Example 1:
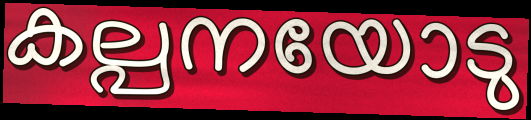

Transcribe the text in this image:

കല്പനയോടു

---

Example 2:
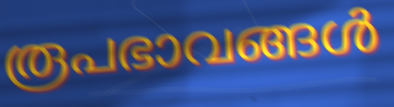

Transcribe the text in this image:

രൂപഭാവങ്ങൾ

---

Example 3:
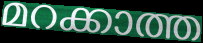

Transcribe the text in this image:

മറക്കാത്ത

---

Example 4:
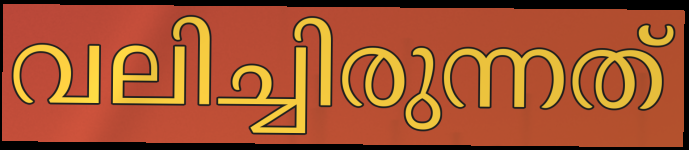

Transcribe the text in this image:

വലിച്ചിരുന്നത്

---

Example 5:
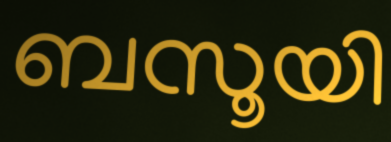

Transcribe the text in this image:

ബസൂയി